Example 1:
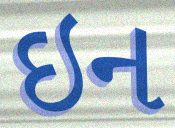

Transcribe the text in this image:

ઇન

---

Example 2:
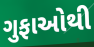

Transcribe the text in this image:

ગુફાઓથી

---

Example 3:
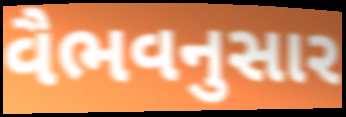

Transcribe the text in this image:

વૈભવનુસાર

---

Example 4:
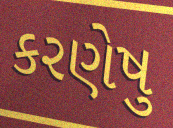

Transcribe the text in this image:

કરણેષુ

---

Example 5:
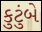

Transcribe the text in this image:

કુટુંબે